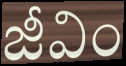
జీవిం